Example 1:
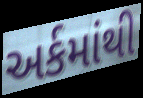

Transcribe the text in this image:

અર્કમાંથી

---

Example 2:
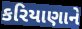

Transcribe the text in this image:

કરિયાણાને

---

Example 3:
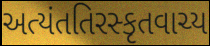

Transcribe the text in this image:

અત્યંતતિરસ્કૃતવાચ્ય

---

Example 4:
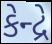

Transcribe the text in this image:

કેન્દ્રે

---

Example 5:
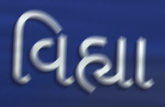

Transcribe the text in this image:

વિહ્યા